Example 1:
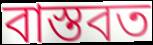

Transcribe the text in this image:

বাস্তবত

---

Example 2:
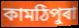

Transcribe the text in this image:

কামঠিপুৰা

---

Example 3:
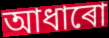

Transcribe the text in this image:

আধাৰো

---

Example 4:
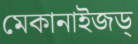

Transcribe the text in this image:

মেকানাইজড্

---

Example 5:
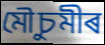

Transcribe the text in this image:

মৌচুমীৰ